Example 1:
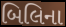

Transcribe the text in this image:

બિલિના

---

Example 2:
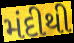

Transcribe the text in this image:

મંદીથી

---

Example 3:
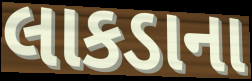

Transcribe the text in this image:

લાકડાના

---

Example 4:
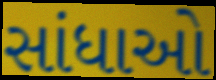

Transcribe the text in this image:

સાંધાઓ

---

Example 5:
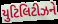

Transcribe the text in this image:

યુટિલિટીઝને